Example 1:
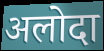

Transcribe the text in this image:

अलोदा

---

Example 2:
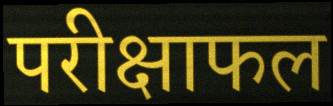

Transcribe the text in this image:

परीक्षाफल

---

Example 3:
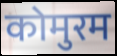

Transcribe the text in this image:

कोमुरम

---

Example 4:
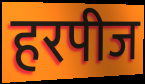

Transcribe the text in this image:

हरपीज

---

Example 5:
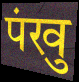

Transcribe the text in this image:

पंखु